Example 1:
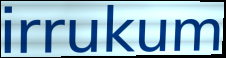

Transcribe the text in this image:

irrukum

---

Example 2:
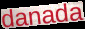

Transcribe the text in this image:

danada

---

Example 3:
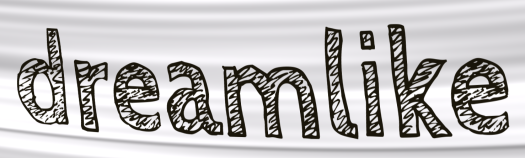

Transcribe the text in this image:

dreamlike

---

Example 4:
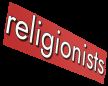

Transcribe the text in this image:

religionists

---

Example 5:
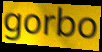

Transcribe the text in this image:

gorbo